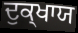
ਦੁਕ੍ਖਾਯ